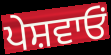
ਪੇਸ਼ਵਾਓਂ